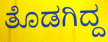
ತೊಡಗಿದ್ದ